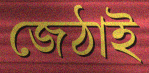
জেঠাই